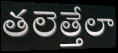
తలెత్తేలా